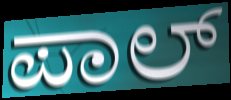
ಪಾಲ್